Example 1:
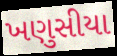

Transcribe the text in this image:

ખણુસીયા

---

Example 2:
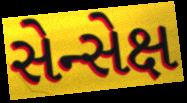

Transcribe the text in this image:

સેન્સેક્ષ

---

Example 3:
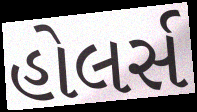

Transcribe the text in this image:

હોલર્સ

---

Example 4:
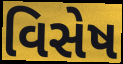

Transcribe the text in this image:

વિસેષ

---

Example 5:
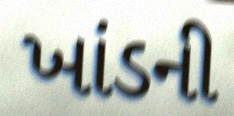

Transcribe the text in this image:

ખાંડની